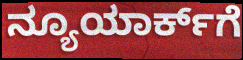
ನ್ಯೂಯಾರ್ಕ್‌ಗೆ